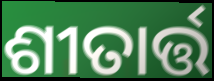
ଶୀତାର୍ତ୍ତ